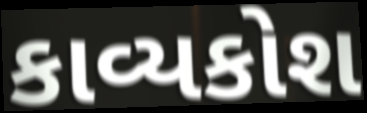
કાવ્યકોશ